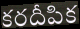
కరదీపిక